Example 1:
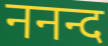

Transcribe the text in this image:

ननन्द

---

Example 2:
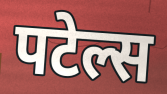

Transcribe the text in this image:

पटेल्स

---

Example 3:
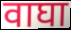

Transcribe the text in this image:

वाघा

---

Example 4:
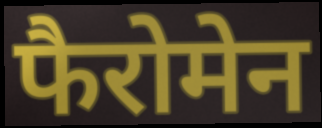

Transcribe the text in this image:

फैरोमेन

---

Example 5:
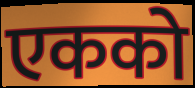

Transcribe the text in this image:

एकको